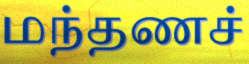
மந்தணச்